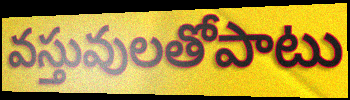
వస్తువులతోపాటు